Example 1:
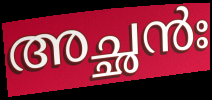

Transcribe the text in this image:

അച്ഛൻഃ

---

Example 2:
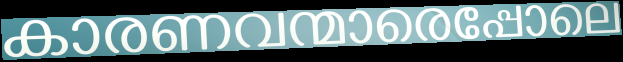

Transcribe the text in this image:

കാരണവന്മാരെപ്പോലെ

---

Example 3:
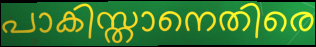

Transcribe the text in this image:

പാകിസ്താനെതിരെ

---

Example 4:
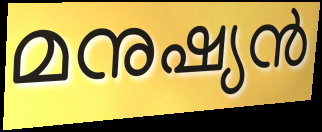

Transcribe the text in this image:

മനുഷ്യൻ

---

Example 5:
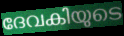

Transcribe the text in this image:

ദേവകിയുടെ